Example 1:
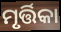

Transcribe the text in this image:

ମୃର୍ତ୍ତିକା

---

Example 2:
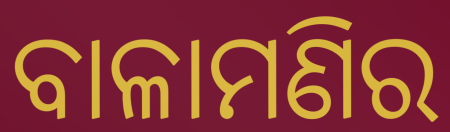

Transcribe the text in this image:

ବାଳାମଣିର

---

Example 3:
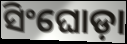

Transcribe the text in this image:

ସିଂଘୋଡ଼ା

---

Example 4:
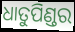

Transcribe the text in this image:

ଧାତୁପିଣ୍ଡର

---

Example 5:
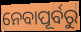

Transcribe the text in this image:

ନେବାପୂର୍ବରୁ